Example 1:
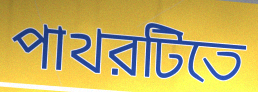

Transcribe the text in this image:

পাথরটিতে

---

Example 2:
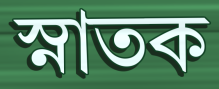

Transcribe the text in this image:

স্নাতক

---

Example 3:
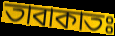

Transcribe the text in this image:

তাবাকাতঃ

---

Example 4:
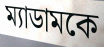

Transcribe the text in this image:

ম্যাডামকে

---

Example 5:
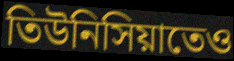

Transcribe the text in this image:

তিউনিসিয়াতেও